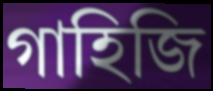
গাহিজি